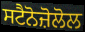
ਸਟੈਨੋਜ਼ੋਲੋਲ